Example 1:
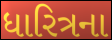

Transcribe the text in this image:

ધારિત્રના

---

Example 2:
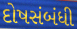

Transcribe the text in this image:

દોષસંબંધી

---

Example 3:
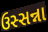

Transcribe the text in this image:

ઉસ્સન્ના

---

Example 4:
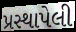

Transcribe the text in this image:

પ્રસ્થાપેલી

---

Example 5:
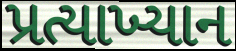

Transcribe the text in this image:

પ્રત્યાખ્યાન